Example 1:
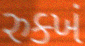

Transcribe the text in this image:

રુક્ખં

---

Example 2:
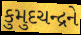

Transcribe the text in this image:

કુમુદચન્દ્રને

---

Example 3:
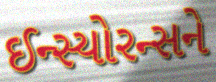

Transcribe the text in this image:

ઈન્સ્યોરન્સને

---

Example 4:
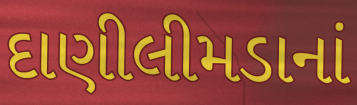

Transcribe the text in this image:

દાણીલીમડાનાં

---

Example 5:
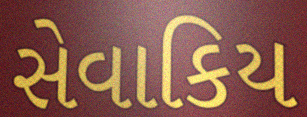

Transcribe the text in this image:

સેવાકિય